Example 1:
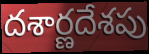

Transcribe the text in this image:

దశార్ణదేశపు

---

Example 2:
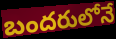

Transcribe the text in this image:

బందరులోనే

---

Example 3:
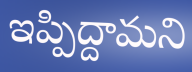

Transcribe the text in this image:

ఇప్పిద్దామని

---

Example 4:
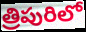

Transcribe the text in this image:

త్రిపురిలో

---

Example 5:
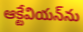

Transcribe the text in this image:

ఆక్టేవియన్‌ను